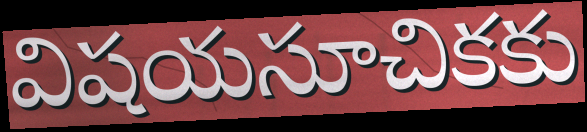
విషయసూచికకు